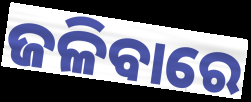
ଜଳିବାରେ